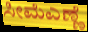
ಸೀಮೆಎಣ್ಣೆ